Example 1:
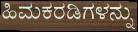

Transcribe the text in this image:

ಹಿಮಕರಡಿಗಳನ್ನು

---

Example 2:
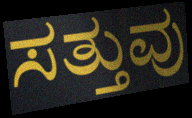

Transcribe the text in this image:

ಸತ್ತುವು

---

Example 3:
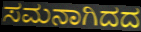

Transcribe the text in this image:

ಸಮನಾಗಿದದ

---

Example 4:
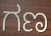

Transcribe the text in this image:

ಗಣ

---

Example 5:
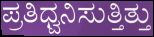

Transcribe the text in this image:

ಪ್ರತಿಧ್ವನಿಸುತ್ತಿತ್ತು